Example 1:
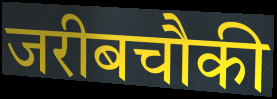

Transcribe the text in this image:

जरीबचौकी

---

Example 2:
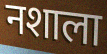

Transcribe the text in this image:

नशाला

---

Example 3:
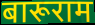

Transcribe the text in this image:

बारूराम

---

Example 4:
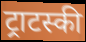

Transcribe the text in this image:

ट्राटस्की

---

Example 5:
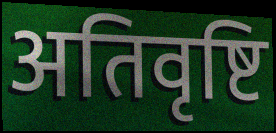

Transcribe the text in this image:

अतिवृष्टि